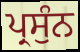
ਪ੍ਰਸੁੰਨ